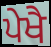
ਪੇਖੈ